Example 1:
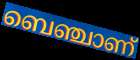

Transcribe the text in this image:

ബെഞ്ചാണ്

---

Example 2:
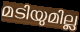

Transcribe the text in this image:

മടിയുമില്ല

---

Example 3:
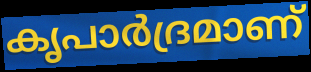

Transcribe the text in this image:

കൃപാർദ്രമാണ്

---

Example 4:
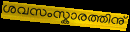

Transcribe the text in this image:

ശവസംസ്കാരത്തിനു്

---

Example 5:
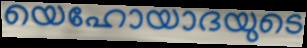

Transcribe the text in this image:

യെഹോയാദയുടെ